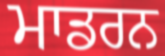
ਮਾਡਰਨ